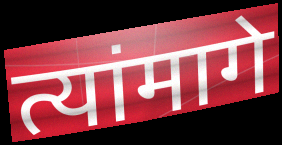
त्यांमागे